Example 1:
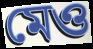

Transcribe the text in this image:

মেও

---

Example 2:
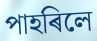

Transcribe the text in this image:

পাহৰিলে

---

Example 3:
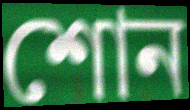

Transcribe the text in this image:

শোন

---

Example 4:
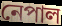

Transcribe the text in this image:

নেপাল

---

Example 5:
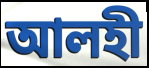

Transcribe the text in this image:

আলহী